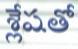
శ్లేషతో